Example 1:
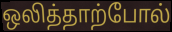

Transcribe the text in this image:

ஒலித்தாற்போல்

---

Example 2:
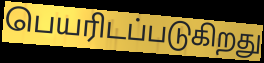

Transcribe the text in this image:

பெயரிடப்படுகிறது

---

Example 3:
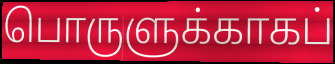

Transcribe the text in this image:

பொருளுக்காகப்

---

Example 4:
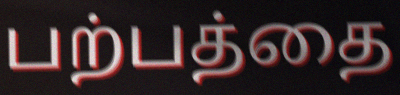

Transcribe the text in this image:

பற்பத்தை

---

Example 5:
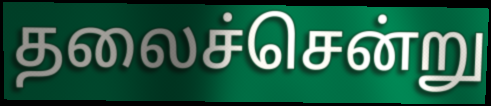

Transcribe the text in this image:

தலைச்சென்று